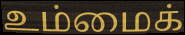
உம்மைக்